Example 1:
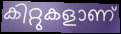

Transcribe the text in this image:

കിറ്റുകളാണ്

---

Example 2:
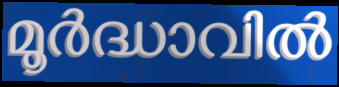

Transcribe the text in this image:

മൂർദ്ധാവിൽ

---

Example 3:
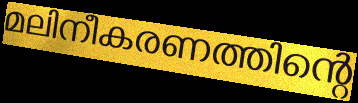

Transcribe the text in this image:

മലിനീകരണത്തിന്റെ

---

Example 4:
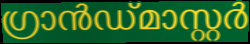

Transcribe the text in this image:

ഗ്രാൻഡ്മാസ്റ്റർ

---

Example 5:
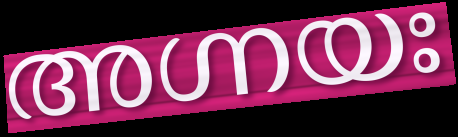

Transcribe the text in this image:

അഗ്നയഃ